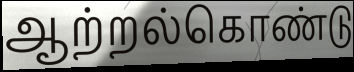
ஆற்றல்கொண்டு